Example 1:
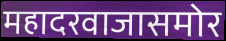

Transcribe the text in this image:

महादरवाजासमोर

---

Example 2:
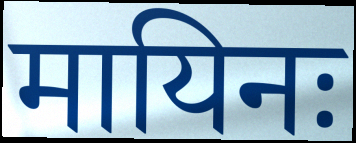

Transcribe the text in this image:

मायिनः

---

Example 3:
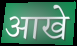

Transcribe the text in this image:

आखे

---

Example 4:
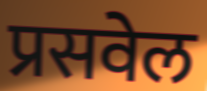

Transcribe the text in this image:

प्रसवेल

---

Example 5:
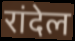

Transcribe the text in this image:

रांदेल